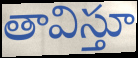
తావిస్తూ